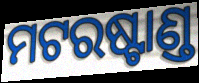
ମଟରଷ୍ଟାଣ୍ଡ